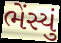
ભેંસ્યું